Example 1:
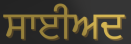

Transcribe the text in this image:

ਸਾਈਅਦ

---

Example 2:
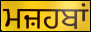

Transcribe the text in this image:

ਮਜ਼ਹਬਾਂ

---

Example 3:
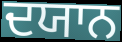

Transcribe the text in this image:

ਦਯਾਨ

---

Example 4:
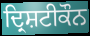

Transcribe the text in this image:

ਦ੍ਰਿਸ਼ਟੀਕੌਨ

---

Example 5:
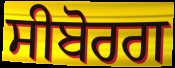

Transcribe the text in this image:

ਸੀਬੋਰਗ